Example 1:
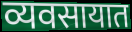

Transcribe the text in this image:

व्यवसायात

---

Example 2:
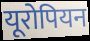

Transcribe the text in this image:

यूरोपियन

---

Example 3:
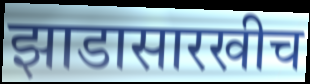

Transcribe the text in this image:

झाडासारखीच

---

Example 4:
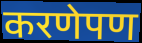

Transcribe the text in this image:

करणेपण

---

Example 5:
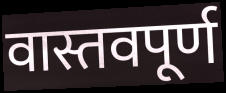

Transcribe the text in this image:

वास्तवपूर्ण